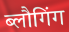
ब्लौगिंग